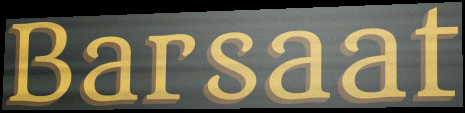
Barsaat